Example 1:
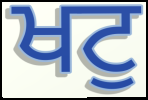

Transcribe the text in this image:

ਖਟੁ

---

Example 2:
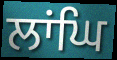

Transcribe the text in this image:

ਲਾਂਘਿ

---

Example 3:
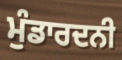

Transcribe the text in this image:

ਮੁੰਡਾਰਦਨੀ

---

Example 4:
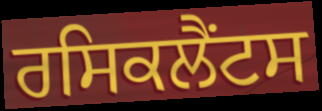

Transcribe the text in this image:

ਰਸਿਕਲੈਂਟਸ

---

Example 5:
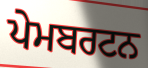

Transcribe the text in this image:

ਪੇਮਬਰਟਨ